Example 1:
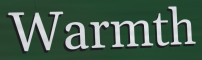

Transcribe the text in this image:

Warmth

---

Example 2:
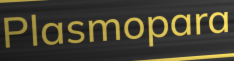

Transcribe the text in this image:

Plasmopara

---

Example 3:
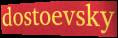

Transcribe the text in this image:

dostoevsky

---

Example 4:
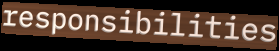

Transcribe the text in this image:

responsibilities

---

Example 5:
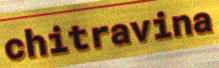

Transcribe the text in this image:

chitravina